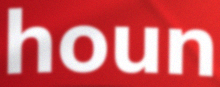
houn